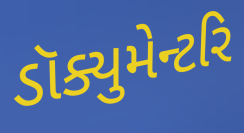
ડૉક્યુમેન્ટરિ